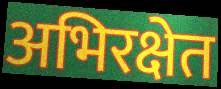
अभिरक्षेत